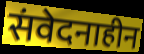
संवेदनाहीन